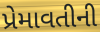
પ્રેમાવતીની